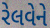
રેલવેને